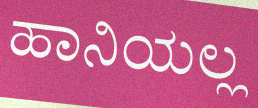
ಹಾನಿಯಲ್ಲ